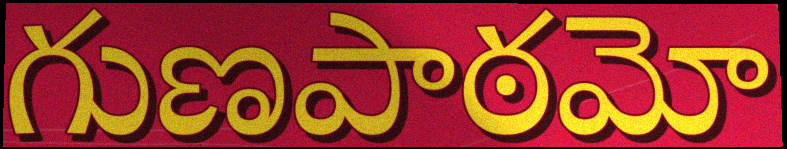
గుణపాఠమో